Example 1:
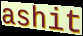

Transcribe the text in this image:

ashit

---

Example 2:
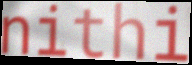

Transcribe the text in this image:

nithi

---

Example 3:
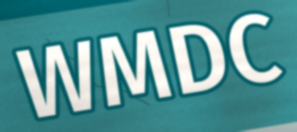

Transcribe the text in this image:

WMDC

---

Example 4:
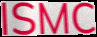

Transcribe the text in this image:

ISMC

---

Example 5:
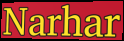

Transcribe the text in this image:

Narhar